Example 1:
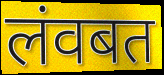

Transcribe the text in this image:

लंवबत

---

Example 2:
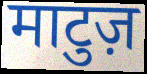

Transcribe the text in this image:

माटुज़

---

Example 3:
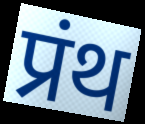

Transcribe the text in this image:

प्रंथ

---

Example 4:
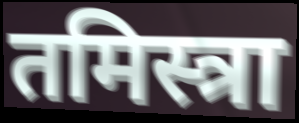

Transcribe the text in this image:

तमिस्त्रा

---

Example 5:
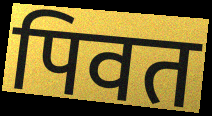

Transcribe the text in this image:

पिवत